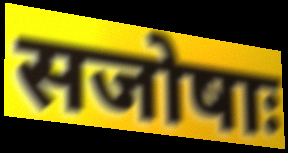
सजोषाः